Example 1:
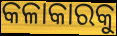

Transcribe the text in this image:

କଳାକାରକୁ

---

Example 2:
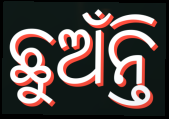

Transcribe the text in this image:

ଛୁଅଁନ୍ତି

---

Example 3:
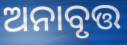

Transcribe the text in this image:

ଅନାବୃତ୍ତ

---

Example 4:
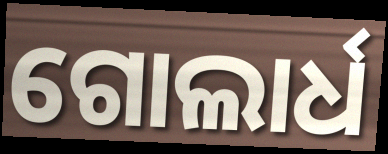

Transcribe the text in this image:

ଗୋଲାର୍ଧ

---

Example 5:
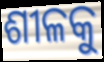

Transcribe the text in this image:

ଶୀଳକୁ